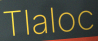
Tlaloc